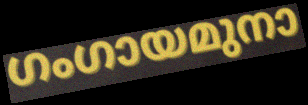
ഗംഗായമുനാ